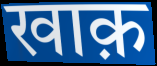
खाक़